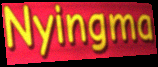
Nyingma